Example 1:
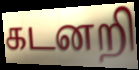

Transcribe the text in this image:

கடனறி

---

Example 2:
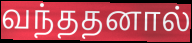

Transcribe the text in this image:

வந்ததனால்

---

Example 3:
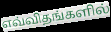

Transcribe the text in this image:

எவ்விதங்களில்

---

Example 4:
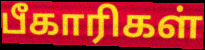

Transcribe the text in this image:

பீகாரிகள்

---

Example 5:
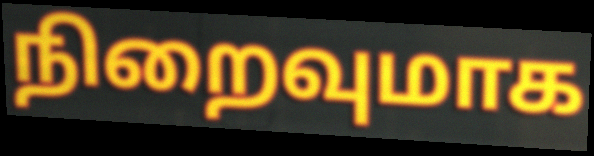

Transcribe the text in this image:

நிறைவுமாக